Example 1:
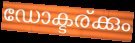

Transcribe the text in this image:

ഡോക്ടര്ക്കും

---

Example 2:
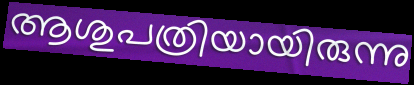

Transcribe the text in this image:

ആശുപത്രിയായിരുന്നു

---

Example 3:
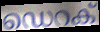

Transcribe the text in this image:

ഡെറക്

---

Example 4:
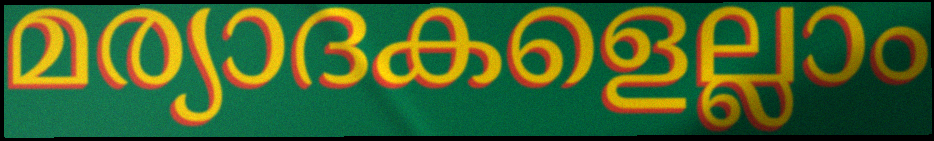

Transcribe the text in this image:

മര്യാദകളെല്ലാം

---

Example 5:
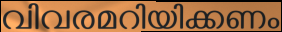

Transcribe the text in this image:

വിവരമറിയിക്കണം